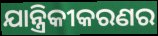
ଯାନ୍ତ୍ରିକୀକରଣର